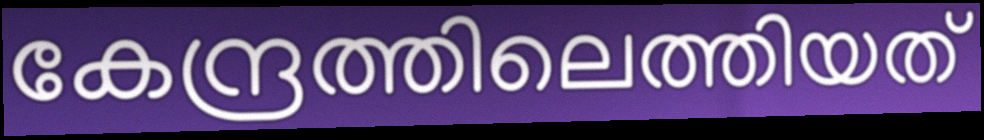
കേന്ദ്രത്തിലെത്തിയത്